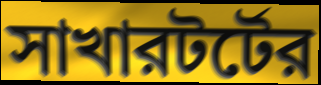
সাখারটর্টের